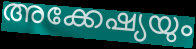
അക്കേഷ്യയും